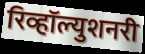
रिव्हॉल्युशनरी